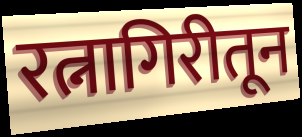
रत्नागिरीतून